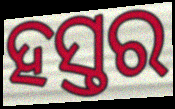
ହସ୍ତର